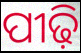
ପୀଢ଼ି